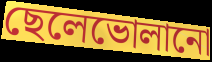
ছেলেভোলানো